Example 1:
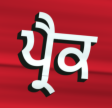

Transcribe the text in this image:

ਪ੍ਰੈਕ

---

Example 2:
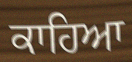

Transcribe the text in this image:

ਕਾਹਿਆ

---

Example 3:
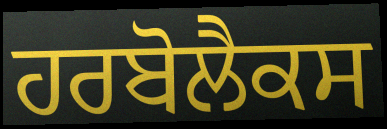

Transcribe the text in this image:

ਹਰਬੋਲੈਕਸ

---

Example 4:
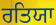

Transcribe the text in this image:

ਰਤਿਯਾ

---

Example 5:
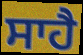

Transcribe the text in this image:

ਸਾਹੈ